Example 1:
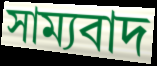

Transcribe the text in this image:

সাম্যবাদ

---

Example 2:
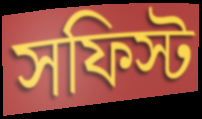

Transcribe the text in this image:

সফিস্ট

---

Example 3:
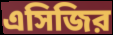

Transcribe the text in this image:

এসিজির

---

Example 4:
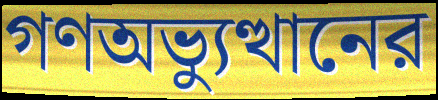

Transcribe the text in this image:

গণঅভ্যুত্থানের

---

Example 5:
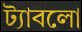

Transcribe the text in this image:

ট্যাবলো